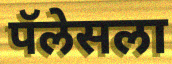
पॅलेसला